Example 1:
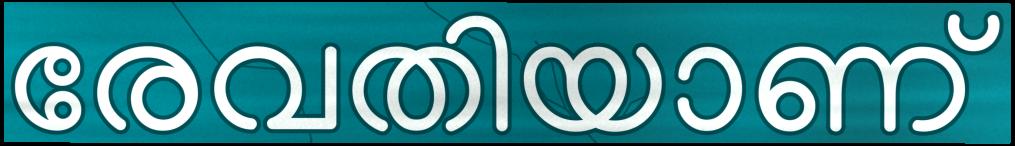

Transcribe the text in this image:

രേവതിയാണ്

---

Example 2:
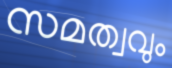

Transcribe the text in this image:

സമത്വവും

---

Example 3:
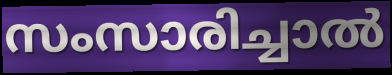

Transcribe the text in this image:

സംസാരിച്ചാൽ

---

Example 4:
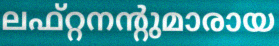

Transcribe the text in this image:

ലഫ്റ്റനന്റുമാരായ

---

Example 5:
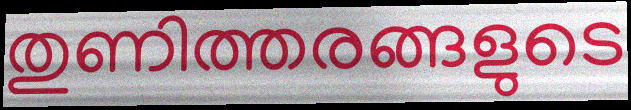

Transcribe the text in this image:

തുണിത്തരങ്ങളുടെ